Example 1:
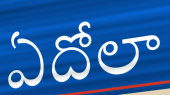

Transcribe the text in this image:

ఏదోలా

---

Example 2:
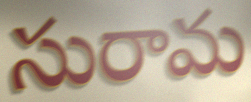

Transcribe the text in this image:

సురామ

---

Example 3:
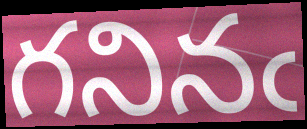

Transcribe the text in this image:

గనినఁ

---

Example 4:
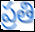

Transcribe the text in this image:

ప్రతి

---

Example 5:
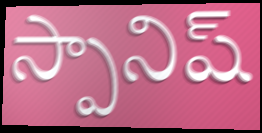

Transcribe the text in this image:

స్పానిష్